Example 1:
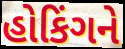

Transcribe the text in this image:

હોકિંગને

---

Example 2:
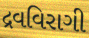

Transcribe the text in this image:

દ્રવવિરાગી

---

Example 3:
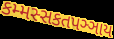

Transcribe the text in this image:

કમ્મસ્સકતપઞ્ઞાય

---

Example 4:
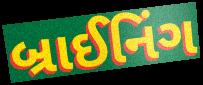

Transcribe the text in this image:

બ્રાઈનિંગ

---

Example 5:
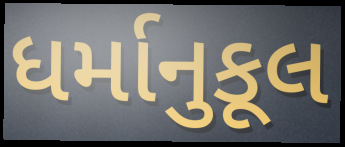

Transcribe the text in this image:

ધર્માનુકૂલ